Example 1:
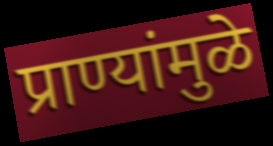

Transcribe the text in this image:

प्राण्यांमुळे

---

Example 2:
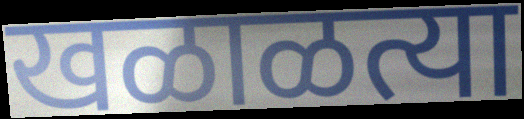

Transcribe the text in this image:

खळाळत्या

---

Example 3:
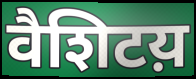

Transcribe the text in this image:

वैशिटय़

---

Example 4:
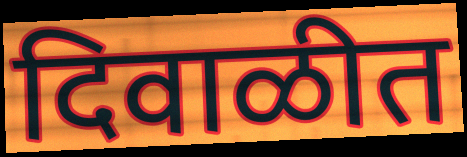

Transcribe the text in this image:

दिवाळीत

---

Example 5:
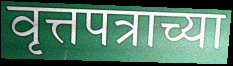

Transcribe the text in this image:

वृत्तपत्राच्या